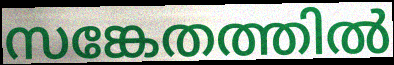
സങ്കേതത്തിൽ